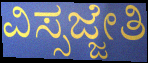
ವಿಸ್ಸಜ್ಜೇತಿ